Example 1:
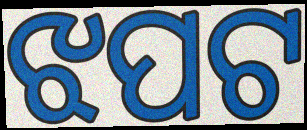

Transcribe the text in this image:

ଝପଟ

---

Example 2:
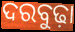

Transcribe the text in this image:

ଦରବୁଢ଼ା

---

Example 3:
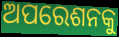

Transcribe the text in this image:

ଅପରେଶନକୁ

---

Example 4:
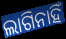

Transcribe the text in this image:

ଲାଗିନାହିଁ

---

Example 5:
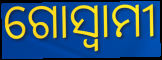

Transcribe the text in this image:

ଗୋସ୍ୱାମୀ